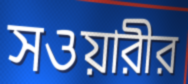
সওয়ারীর